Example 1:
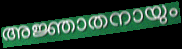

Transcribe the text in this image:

അജ്ഞാതനായും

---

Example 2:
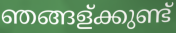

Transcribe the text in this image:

ഞങ്ങള്ക്കുണ്ട്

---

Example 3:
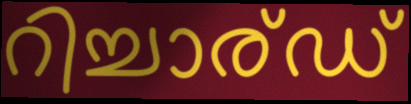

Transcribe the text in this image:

റിച്ചാര്ഡ്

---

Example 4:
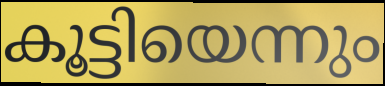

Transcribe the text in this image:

കൂട്ടിയെന്നും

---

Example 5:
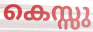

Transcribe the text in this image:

കെസ്സു